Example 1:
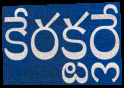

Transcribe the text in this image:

కేరక్టర్లే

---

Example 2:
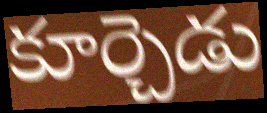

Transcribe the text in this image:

కూర్చెడు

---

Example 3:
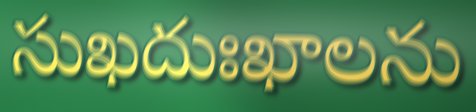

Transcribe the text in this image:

సుఖదుఃఖాలను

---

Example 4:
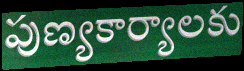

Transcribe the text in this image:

పుణ్యకార్యాలకు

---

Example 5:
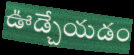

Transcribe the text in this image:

ఊడ్చేయడం